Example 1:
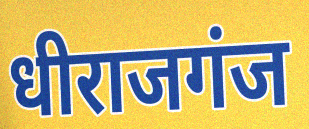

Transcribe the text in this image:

धीराजगंज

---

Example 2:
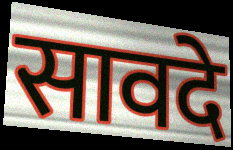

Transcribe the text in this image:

सावदे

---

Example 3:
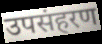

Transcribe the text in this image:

उपसंहरण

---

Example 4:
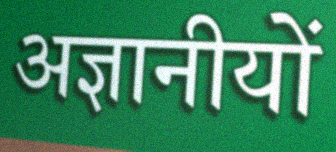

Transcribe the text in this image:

अज्ञानीयों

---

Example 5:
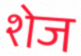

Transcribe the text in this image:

शेज